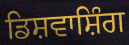
ਡਿਸ਼ਵਾਸ਼ਿੰਗ